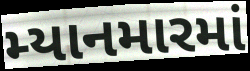
મ્યાનમારમાં